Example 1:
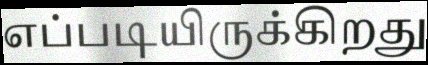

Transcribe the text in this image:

எப்படியிருக்கிறது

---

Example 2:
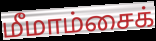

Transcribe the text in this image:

மீமாம்சைக்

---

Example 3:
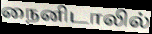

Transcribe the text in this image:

நைனிடாலில்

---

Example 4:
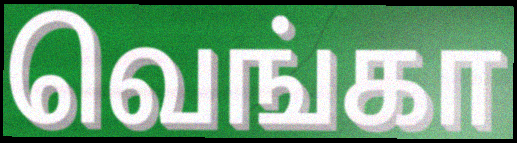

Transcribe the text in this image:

வெங்கா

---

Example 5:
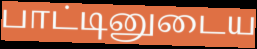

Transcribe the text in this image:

பாட்டினுடைய